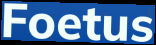
Foetus